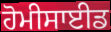
ਹੋਮੀਸਾਈਡ